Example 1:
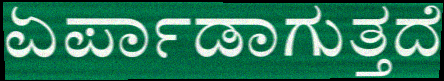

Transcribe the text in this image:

ಏರ್ಪಾಡಾಗುತ್ತದೆ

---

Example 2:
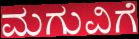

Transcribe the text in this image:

ಮಗುವಿಗೆ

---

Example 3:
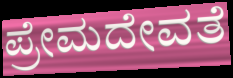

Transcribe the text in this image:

ಪ್ರೇಮದೇವತೆ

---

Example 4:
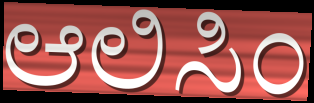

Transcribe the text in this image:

ಆಲಿಸಿಂ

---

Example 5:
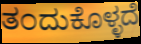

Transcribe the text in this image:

ತಂದುಕೊಳ್ಳದೆ